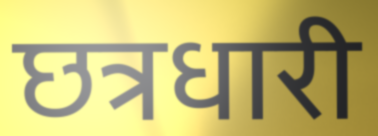
छत्रधारी